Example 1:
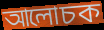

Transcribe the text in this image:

আলোচক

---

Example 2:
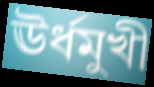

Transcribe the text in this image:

ঊৰ্ধমুখী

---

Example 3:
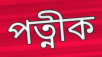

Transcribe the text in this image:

পত্নীক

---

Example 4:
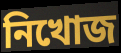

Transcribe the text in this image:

নিখোজ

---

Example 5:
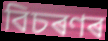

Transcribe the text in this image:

বিচৰণৰ